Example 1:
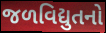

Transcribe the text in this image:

જળવિદ્યુતનો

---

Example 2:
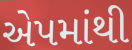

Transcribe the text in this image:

એપમાંથી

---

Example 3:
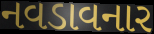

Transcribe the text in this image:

નવડાવનાર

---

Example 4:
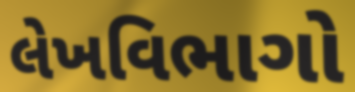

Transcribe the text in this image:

લેખવિભાગો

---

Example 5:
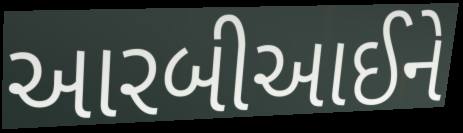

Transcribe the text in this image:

આરબીઆઈને